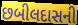
છબીલદાસની